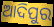
ଆଦିପୁର